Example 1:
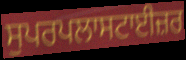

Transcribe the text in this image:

ਸੁਪਰਪਲਾਸਟਾਈਜ਼ਰ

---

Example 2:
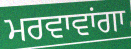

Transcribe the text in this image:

ਮਰਵਾਵਾਂਗਾ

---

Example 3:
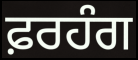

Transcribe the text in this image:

ਫ਼ਰਹੰਗ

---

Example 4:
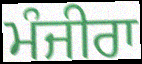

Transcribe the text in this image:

ਮੰਜੀਰਾ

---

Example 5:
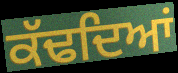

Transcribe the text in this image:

ਕੱਢਦਿਆਂ